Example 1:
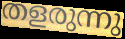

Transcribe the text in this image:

തളരുന്നു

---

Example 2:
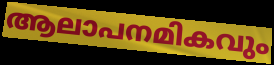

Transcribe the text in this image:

ആലാപനമികവും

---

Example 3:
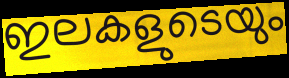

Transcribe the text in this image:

ഇലകളുടെയും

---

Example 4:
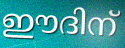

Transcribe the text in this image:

ഈദിന്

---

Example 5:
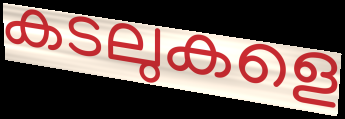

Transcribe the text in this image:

കടലുകളെ